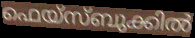
ഫെയ്സ്ബുക്കിൽ